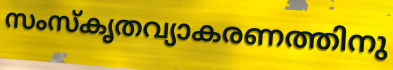
സംസ്കൃതവ്യാകരണത്തിനു